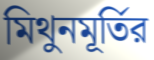
মিথুনমূর্তির